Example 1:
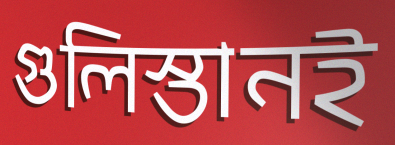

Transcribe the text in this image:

গুলিস্তানই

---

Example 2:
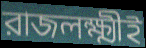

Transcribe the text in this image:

রাজলক্ষ্মীই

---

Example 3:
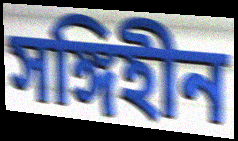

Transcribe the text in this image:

সঙ্গিহীন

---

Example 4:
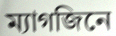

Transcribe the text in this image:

ম্যাগজিনে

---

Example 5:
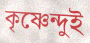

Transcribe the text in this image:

কৃষ্ণেন্দুই